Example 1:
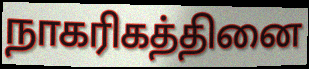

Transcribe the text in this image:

நாகரிகத்தினை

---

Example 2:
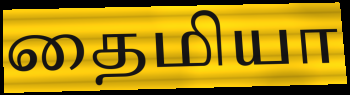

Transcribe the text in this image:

தைமியா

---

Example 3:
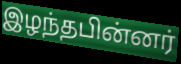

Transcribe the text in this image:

இழந்தபின்னர்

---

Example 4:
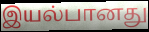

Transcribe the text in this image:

இயல்பானது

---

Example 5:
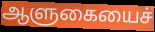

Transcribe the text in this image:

ஆளுகையைச்